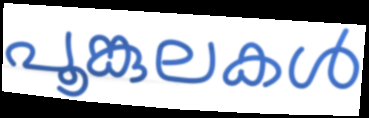
പൂങ്കുലകൾ